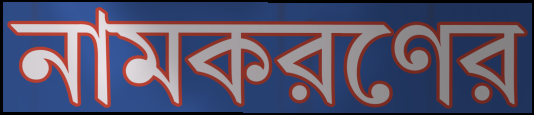
নামকরণের